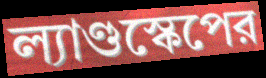
ল্যাণ্ডস্কেপের